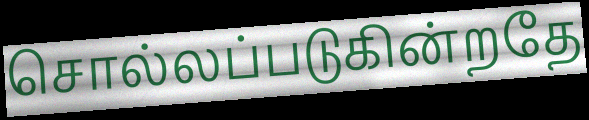
சொல்லப்படுகின்றதே